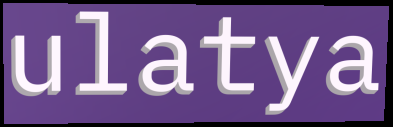
ulatya